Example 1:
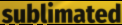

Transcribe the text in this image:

sublimated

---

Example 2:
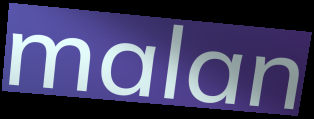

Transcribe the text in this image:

malan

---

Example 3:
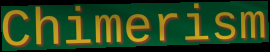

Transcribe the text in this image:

Chimerism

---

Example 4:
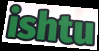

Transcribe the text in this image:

ishtu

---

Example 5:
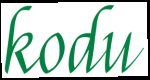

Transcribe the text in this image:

kodu